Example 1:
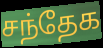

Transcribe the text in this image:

சந்தேக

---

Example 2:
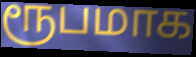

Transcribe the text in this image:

ரூபமாக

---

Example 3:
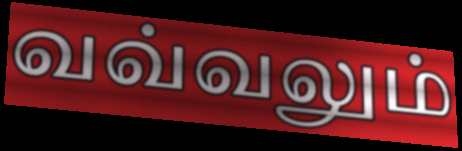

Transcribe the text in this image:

வவ்வலும்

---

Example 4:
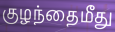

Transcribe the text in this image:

குழந்தைமீது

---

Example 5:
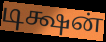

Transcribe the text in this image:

டிக்ஷன்